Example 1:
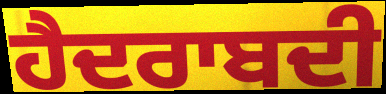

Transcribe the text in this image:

ਹੈਦਰਾਬਦੀ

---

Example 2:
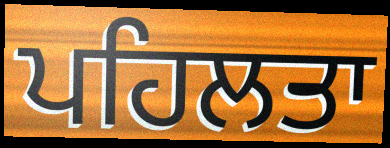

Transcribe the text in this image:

ਪਹਿਲਤਾ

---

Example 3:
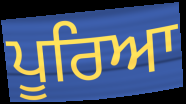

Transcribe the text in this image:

ਪੂਰਿਆ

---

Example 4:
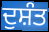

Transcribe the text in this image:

ਦੁਸ਼ੰਤ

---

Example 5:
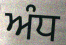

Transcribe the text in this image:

ਅੰਧ